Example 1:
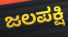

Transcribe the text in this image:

ಜಲಪಕ್ಷಿ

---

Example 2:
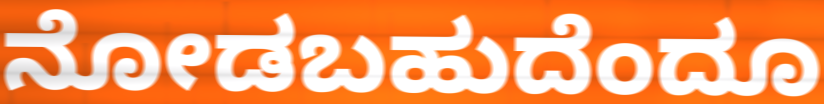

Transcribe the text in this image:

ನೋಡಬಹುದೆಂದೂ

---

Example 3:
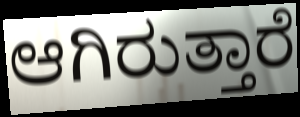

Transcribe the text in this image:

ಆಗಿರುತ್ತಾರೆ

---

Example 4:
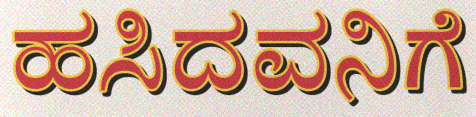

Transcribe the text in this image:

ಹಸಿದವನಿಗೆ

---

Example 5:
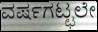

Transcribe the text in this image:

ವರ್ಷಗಟ್ಟಲೇ